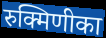
रुक्मिणीका